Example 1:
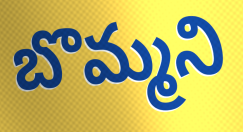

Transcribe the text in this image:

బొమ్మని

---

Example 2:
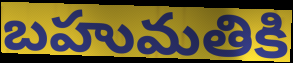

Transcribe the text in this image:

బహుమతికి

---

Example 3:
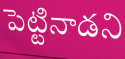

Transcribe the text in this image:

పెట్టినాడని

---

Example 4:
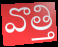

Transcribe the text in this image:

వొత్తి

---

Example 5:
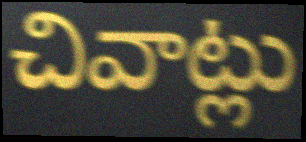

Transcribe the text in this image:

చివాట్లు